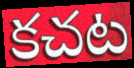
కచట